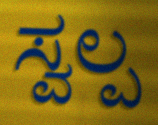
ಸ್ವಲ್ಪ